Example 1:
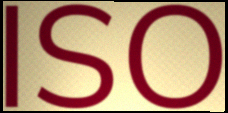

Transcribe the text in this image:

ISO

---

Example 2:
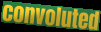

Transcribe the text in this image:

convoluted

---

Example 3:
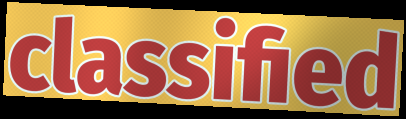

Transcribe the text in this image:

classified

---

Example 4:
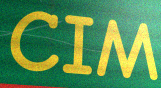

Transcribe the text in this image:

CIM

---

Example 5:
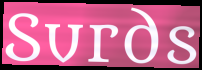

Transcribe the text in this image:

Surds